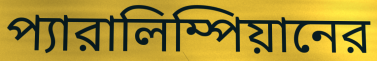
প্যারালিম্পিয়ানের